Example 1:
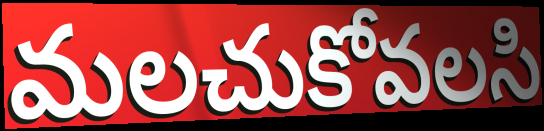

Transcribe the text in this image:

మలచుకోవలసి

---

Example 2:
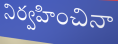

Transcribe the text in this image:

నిర్వహించినా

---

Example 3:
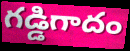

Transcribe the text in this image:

గడ్డిగాదం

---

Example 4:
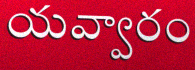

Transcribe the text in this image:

యవ్వారం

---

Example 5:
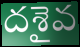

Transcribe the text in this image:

దశైవ